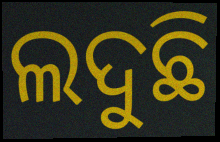
ଲଦୁଛି